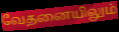
வேதனையிலும்